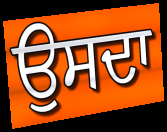
ਉਸਦਾ